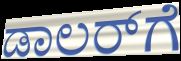
ಡಾಲರ್‌ಗೆ